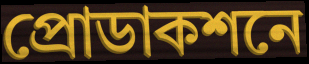
প্রোডাকশনে